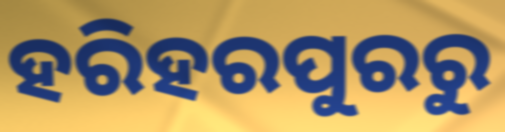
ହରିହରପୁରରୁ